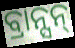
ବ୍ରାନ୍ସନ୍